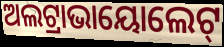
ଅଲଟ୍ରାଭାୟୋଲେଟ୍